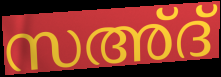
സഅ്ദ്